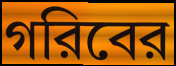
গরিবের